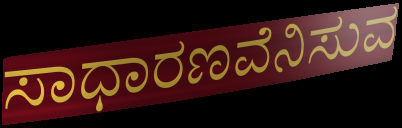
ಸಾಧಾರಣವೆನಿಸುವ